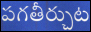
పగతీర్చుట